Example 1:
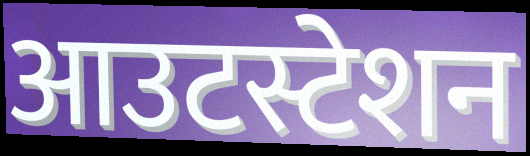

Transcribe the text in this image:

आउटस्टेशन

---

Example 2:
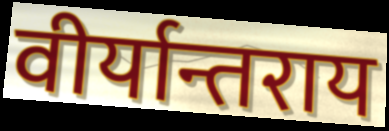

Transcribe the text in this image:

वीर्यान्तराय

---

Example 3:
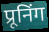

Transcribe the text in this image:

प्रूनिंग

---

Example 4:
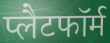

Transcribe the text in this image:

प्लैटफॉर्म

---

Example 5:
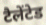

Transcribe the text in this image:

टैलेंटेड